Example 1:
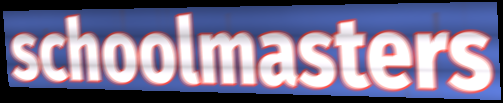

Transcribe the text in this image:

schoolmasters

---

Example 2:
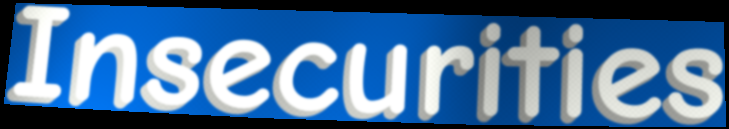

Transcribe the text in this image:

Insecurities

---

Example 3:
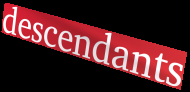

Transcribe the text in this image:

descendants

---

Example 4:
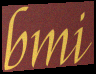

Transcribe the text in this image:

bmi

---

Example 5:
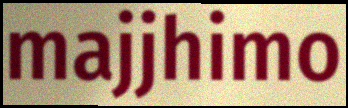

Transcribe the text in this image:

majjhimo